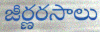
జీర్ణరసాలు